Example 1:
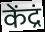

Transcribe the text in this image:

केंद्रं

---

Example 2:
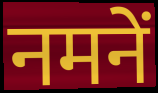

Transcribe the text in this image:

नमनें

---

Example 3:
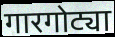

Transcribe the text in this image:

गारगोट्या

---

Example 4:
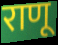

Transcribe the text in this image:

राणू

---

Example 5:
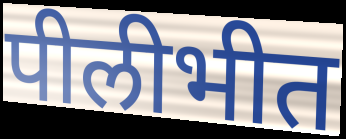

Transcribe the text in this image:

पीलीभीत